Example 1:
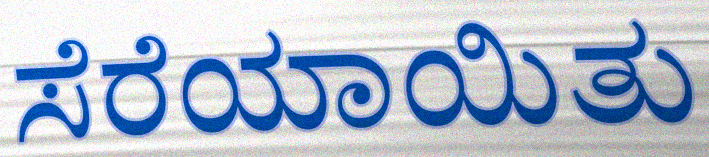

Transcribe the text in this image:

ಸೆರೆಯಾಯಿತು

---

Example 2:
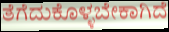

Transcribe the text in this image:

ತೆಗೆದುಕೊಳ್ಳಬೇಕಾಗಿದೆ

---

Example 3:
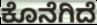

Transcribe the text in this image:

ಕೊನೆಗಿದೆ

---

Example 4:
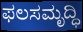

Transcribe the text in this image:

ಫಲಸಮೃದ್ಧಿ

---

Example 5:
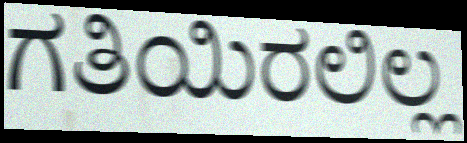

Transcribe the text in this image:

ಗತಿಯಿರಲಿಲ್ಲ